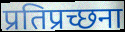
प्रतिप्रच्छना